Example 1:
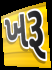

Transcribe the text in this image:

ખરૂ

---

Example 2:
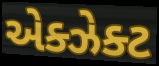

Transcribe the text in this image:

એક્ઝેક્ટ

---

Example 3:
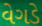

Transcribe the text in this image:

વેગડે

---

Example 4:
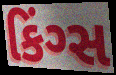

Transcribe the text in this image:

કિંગ્સ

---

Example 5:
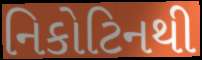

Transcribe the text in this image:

નિકોટિનથી